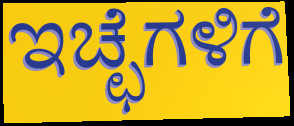
ಇಚ್ಛೆಗಳಿಗೆ